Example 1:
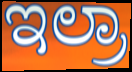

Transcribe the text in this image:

ಇಲ್ರಾ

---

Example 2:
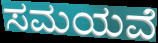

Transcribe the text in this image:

ಸಮಯವೆ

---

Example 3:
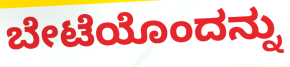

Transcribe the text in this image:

ಬೇಟೆಯೊಂದನ್ನು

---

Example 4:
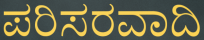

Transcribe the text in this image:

ಪರಿಸರವಾದಿ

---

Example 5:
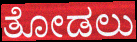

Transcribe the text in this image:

ತೋಡಲು